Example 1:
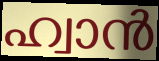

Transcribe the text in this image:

ഹ്വാൻ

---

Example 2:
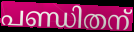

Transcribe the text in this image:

പണ്ഡിതന്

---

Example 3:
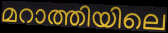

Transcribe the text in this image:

മറാത്തിയിലെ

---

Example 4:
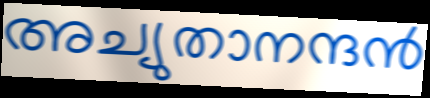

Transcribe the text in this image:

അച്യുതാനന്ദൻ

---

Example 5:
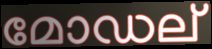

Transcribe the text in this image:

മോഡല്